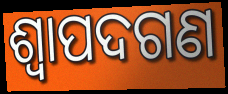
ଶ୍ୱାପଦଗଣ